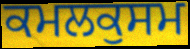
ਕਮਲਕੁਸਮ